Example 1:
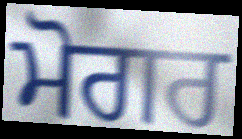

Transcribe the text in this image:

ਮੋਗਰ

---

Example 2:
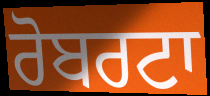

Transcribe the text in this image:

ਰੋਬਰਟਾ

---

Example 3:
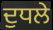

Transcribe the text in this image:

ਦੁਧਲੇ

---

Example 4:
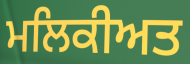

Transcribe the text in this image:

ਮਲਿਕੀਅਤ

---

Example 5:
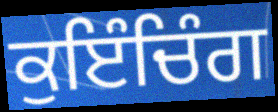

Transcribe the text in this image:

ਕੁਇੰਚਿੰਗ